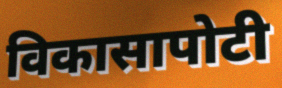
विकासापोटी